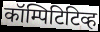
कॉम्पिटिटिव्ह